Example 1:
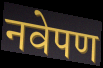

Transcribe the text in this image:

नवेपण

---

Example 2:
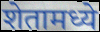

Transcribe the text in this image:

शेतामध्ये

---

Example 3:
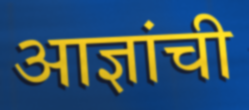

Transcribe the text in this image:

आज्ञांची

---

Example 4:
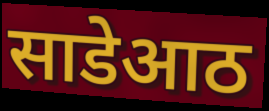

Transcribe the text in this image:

साडेआठ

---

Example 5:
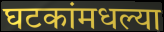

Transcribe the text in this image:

घटकांमधल्या